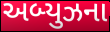
અબ્યુઝના